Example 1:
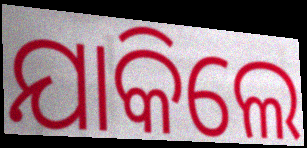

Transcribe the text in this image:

ଯାକିଲେ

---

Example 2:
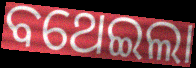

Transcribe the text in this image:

ବଥେଇଲା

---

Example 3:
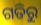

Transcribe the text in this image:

ଗତିରୁ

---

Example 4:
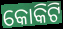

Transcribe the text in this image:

କୋକିଟି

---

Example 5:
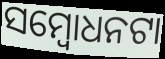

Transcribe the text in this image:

ସମ୍ବୋଧନଟା